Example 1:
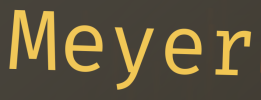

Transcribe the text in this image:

Meyer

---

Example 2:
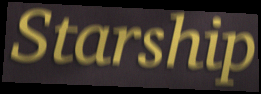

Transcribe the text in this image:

Starship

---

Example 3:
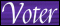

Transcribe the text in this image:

Voter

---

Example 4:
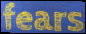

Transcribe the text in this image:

fears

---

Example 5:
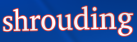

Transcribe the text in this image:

shrouding